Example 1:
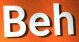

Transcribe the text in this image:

Beh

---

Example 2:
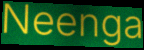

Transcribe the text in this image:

Neenga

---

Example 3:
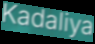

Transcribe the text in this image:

Kadaliya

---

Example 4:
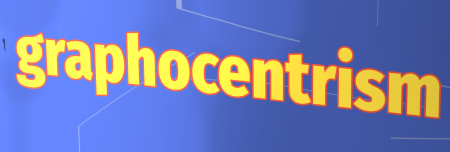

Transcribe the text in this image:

graphocentrism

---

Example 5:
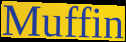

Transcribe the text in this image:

Muffin